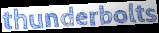
thunderbolts